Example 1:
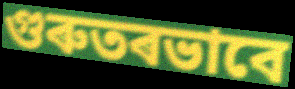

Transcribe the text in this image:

গুৰুতৰভাবে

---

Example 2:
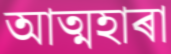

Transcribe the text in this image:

আত্মহাৰা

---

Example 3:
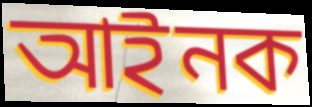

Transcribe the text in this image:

আইনক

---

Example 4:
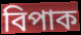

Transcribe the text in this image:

বিপাক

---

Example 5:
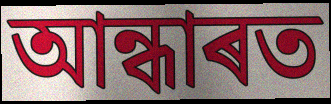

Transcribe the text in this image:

আন্ধাৰত